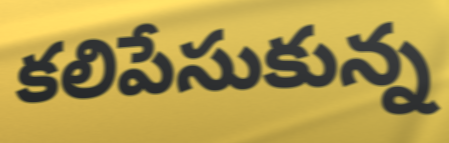
కలిపేసుకున్న